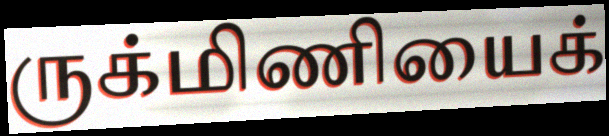
ருக்மிணியைக்